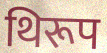
थिरूप